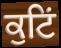
ਕੁਟਿਂ